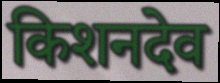
किशनदेव